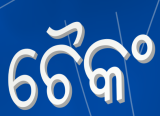
ଚୈକଂ